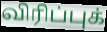
விரிப்புக்